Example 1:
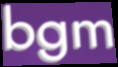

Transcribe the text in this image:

bgm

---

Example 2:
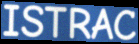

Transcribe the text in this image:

ISTRAC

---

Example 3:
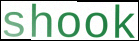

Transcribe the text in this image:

shook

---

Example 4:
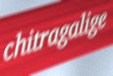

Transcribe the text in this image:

chitragalige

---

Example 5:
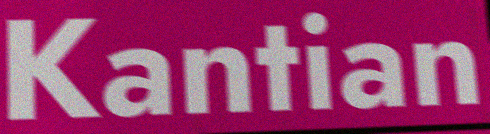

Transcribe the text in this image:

Kantian